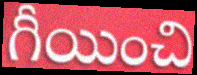
గీయించి